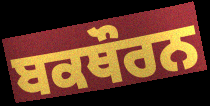
ਬਕਥੌਰਨ